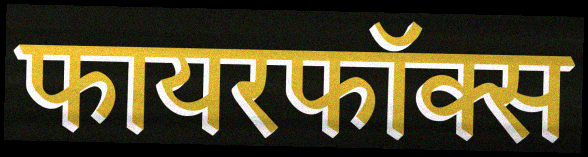
फायरफॉक्स